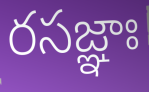
రసజ్ఞాః